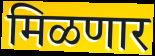
मिळणार